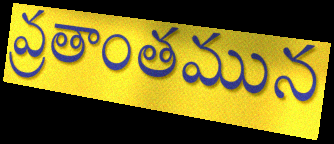
వ్రతాంతమున